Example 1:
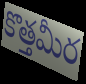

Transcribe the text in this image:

కొత్తమీర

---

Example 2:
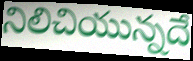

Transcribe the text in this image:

నిలిచియున్నదే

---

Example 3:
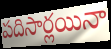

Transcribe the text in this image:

పదిసార్లయినా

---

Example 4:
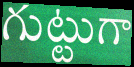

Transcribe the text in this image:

గుట్టుగా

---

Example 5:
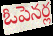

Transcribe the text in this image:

ఓపెనర్ల